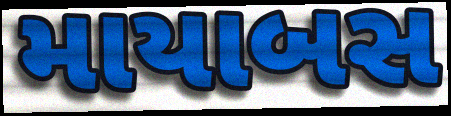
માયાબસ